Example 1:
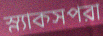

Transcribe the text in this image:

স্ন্যাকসপরা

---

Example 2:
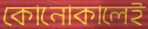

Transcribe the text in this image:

কোনোকালেই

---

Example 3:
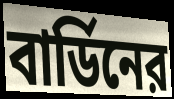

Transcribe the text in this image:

বার্ডিনের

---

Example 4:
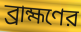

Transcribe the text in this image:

ব্রাহ্মণের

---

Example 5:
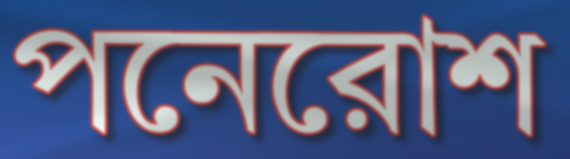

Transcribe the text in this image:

পনেরোশ